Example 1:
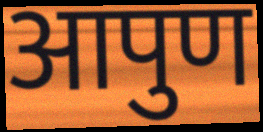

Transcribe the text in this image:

आपुण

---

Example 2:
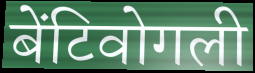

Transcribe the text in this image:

बेंटिवोगली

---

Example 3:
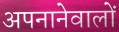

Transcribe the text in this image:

अपनानेवालों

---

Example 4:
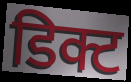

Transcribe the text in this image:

डिक्ट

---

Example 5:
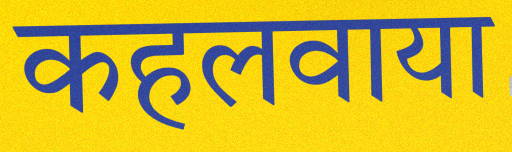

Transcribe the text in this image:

कहलवाया